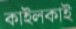
কাইলকাই